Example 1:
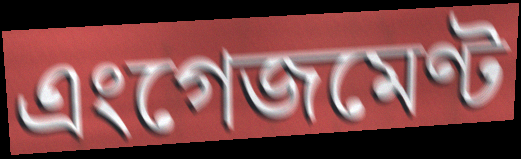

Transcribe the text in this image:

এংগেজমেণ্ট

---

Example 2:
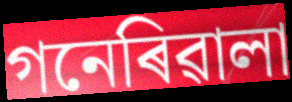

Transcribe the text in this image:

গনেৰিৱালা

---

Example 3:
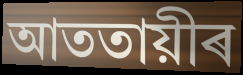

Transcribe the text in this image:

আততায়ীৰ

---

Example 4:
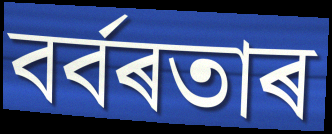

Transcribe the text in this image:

বৰ্বৰতাৰ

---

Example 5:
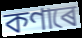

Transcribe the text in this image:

কণাৰে